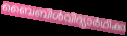
ബൈബിൾവിദ്യാർഥിക്കു